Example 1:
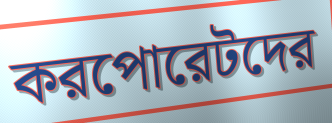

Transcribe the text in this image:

করপোরেটদের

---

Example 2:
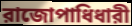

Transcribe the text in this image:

রাজোপাধিধারী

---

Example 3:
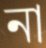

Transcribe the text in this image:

না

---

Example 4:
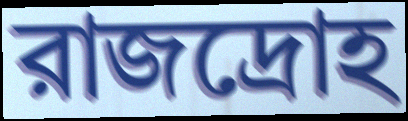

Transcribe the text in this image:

রাজদ্রোহ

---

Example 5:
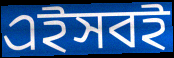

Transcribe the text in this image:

এইসবই